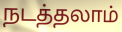
நடத்தலாம்